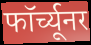
फॉर्च्यूनर